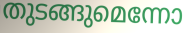
തുടങ്ങുമെന്നോ